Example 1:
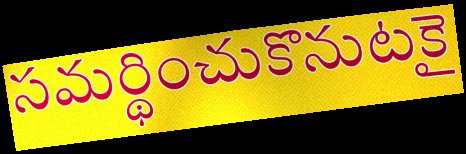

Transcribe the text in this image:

సమర్థించుకొనుటకై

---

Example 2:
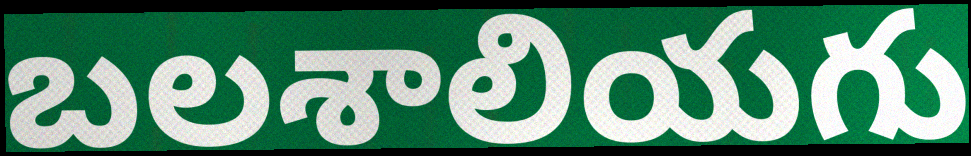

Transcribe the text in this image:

బలశాలియగు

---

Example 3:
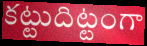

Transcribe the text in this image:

కట్టుదిట్టంగా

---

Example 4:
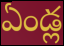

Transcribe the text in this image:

ఏండ్ల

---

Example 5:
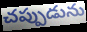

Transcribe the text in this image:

చప్పుడును